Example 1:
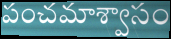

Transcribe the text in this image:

పంచమాశ్వాసం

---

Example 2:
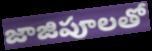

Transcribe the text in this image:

జాజిపూలతో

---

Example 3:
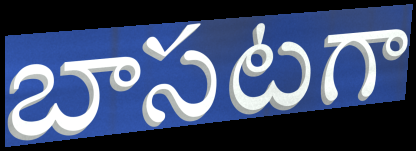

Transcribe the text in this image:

బాసటగా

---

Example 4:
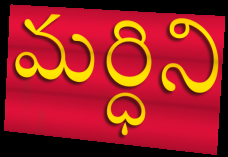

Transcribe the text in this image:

మర్ధిని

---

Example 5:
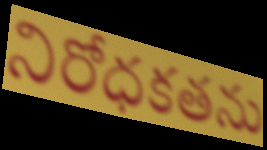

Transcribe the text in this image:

నిరోధకతను